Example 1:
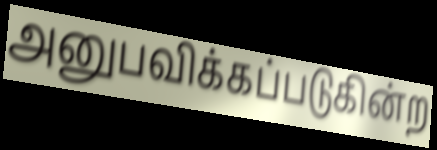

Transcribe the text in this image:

அனுபவிக்கப்படுகின்ற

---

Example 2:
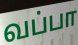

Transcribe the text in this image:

வப்பா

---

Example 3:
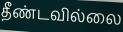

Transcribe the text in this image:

தீண்டவில்லை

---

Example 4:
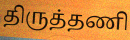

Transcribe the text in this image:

திருத்தணி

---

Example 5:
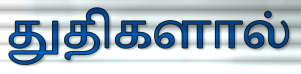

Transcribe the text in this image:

துதிகளால்